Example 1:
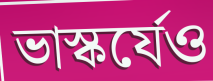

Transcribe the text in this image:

ভাস্কর্যেও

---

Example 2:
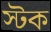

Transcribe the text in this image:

স্টক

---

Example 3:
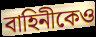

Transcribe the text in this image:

বাহিনীকেও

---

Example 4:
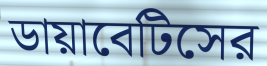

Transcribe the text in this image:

ডায়াবেটিসের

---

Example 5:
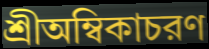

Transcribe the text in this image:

শ্রীঅম্বিকাচরণ